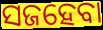
ସଜହେବା